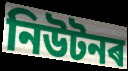
নিউটনৰ